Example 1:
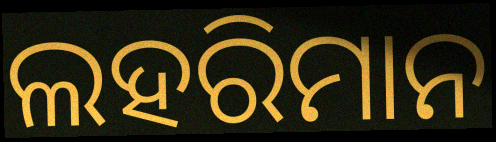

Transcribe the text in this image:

ଲହରିମାନ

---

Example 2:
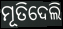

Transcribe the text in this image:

ମୂତିଦେଲି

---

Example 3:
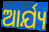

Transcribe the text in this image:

ଆର୍ଯ୍ୟ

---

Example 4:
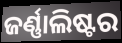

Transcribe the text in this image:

ଜର୍ଣ୍ଣାଲିଷ୍ଟର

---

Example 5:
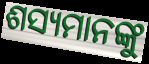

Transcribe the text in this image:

ଶସ୍ୟମାନଙ୍କୁ